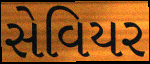
સેવિયર